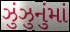
ઝુંઝુનુંમાં